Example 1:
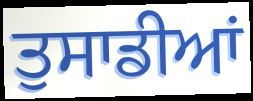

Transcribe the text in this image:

ਤੁਸਾਡੀਆਂ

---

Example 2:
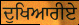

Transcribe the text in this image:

ਦੁਖਿਆਰੀਏ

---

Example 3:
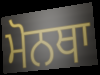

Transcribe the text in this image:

ਮੋਨਥਾ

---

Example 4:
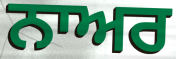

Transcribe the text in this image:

ਨਾਅਰ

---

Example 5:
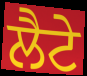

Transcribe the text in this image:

ਲੈਟੇ